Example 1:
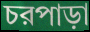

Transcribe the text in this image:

চরপাড়া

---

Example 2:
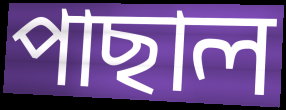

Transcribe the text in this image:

পাছাল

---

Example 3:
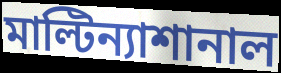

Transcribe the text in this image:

মাল্টিন্যাশানাল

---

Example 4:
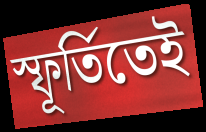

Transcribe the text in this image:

স্ফূর্তিতেই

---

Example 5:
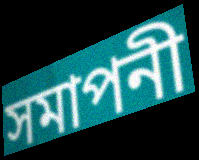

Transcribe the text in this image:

সমাপনী